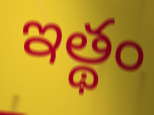
ఇత్థం